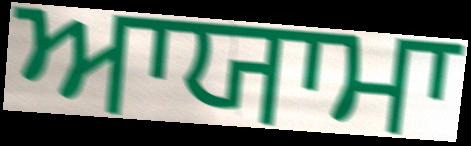
ਆਯਾਮਾ